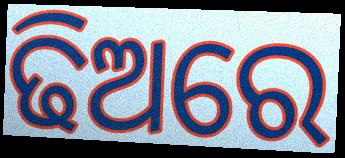
ଢିଅରେ